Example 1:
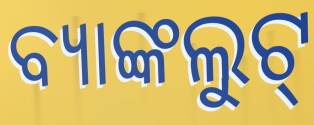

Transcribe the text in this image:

ବ୍ୟାଙ୍କଲୁଟ୍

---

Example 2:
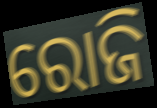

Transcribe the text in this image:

ରୋଜି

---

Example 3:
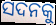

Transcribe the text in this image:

ସଦନକୁ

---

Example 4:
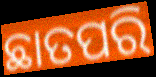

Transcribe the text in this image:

ଛାତପରି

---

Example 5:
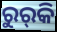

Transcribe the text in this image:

ରୁର୍‍କି